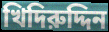
খিদিরুদ্দিন